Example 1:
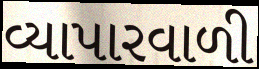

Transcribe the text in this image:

વ્યાપારવાળી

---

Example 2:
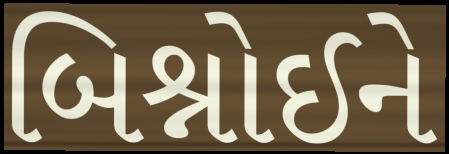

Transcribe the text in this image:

બિશ્નોઈને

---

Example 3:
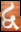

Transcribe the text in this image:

દ્વ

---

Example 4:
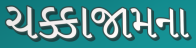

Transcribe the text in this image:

ચક્કાજામના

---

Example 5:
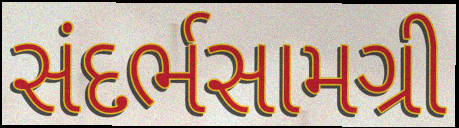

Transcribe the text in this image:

સંદર્ભસામગ્રી